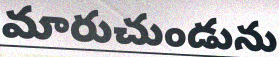
మారుచుండును